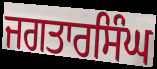
ਜਗਤਾਰਸਿੰਘ